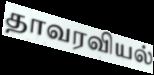
தாவரவியல்